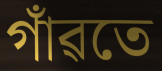
গাঁৱতে